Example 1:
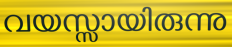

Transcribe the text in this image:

വയസ്സായിരുന്നു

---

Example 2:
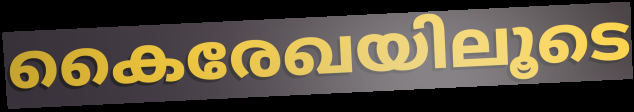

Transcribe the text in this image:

കൈരേഖയിലൂടെ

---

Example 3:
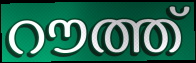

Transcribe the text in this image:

റൗത്ത്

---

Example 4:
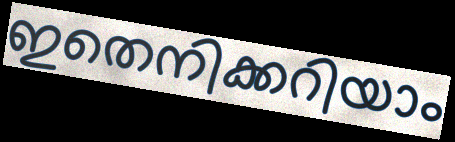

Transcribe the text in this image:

ഇതെനിക്കറിയാം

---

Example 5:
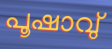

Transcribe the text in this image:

പൂഷാവു്